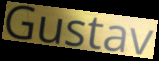
Gustav